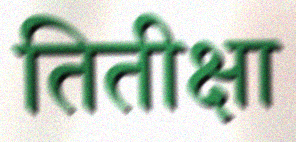
तितीक्षा